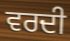
ਵਰਦੀ